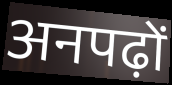
अनपढ़ों